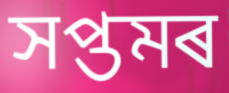
সপ্তমৰ